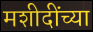
मशीदींच्या